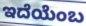
ಇದೆಯೆಂಬ